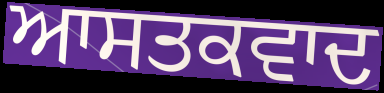
ਆਸਤਕਵਾਦ